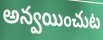
అన్వయించుట